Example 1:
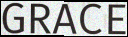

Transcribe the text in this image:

GRACE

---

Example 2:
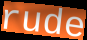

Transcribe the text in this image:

rude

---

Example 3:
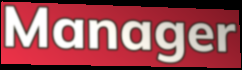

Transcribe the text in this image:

Manager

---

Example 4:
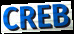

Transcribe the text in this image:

CREB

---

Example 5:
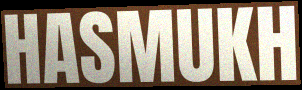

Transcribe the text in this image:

HASMUKH